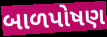
બાળપોષણ